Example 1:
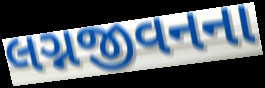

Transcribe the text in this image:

લગ્નજીવનના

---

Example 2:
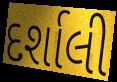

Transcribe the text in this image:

દર્શાલી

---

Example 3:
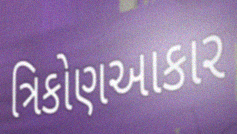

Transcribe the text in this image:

ત્રિકોણઆકાર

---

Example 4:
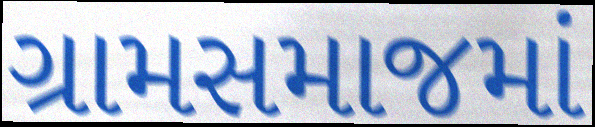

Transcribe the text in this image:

ગ્રામસમાજમાં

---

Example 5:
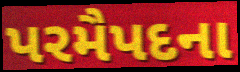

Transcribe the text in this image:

પરમૈપદના